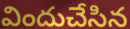
విందుచేసిన